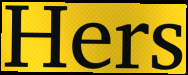
Hers